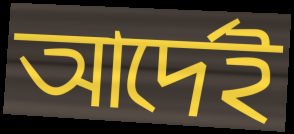
আর্দেই